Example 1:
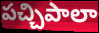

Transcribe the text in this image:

పచ్చిపాలా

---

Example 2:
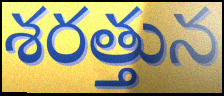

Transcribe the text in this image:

శరత్తున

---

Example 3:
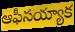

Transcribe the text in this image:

ఆఫీసయ్యాక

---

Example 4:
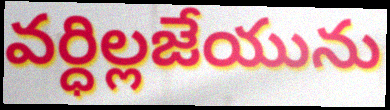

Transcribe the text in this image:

వర్ధిల్లజేయును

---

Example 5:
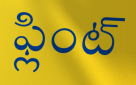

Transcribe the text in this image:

ఫ్లింట్